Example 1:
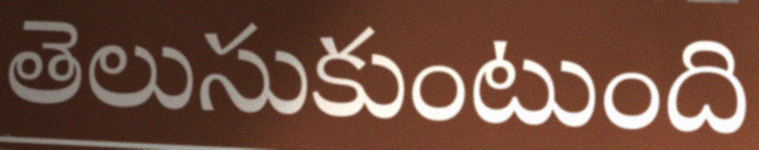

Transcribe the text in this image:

తెలుసుకుంటుంది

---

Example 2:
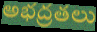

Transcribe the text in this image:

అభద్రతలు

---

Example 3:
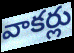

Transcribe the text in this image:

వాకర్లు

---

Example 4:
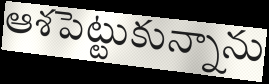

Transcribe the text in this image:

ఆశపెట్టుకున్నాను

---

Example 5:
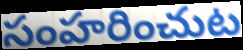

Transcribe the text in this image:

సంహరించుట